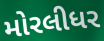
મોરલીધર